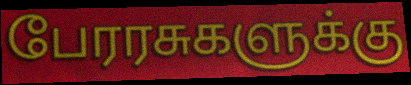
பேரரசுகளுக்கு